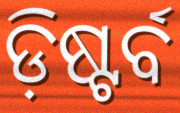
ଡ଼ିଷ୍ଟର୍ବ